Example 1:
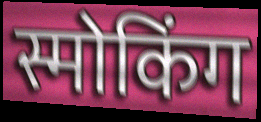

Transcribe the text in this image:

स्मोकिंग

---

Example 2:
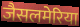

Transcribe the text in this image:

जैसलमेरिया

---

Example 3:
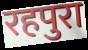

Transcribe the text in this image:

रहपुरा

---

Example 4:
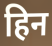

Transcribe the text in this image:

हिन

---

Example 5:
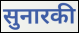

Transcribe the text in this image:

सुनारकी